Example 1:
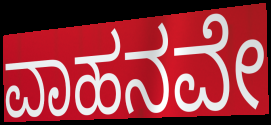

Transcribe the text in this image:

ವಾಹನವೇ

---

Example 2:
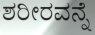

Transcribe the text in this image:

ಶರೀರವನ್ನೆ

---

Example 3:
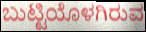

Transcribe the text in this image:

ಬುಟ್ಟಿಯೊಳಗಿರುವ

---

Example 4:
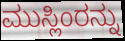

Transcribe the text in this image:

ಮುಸ್ಲಿಂರನ್ನು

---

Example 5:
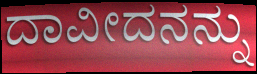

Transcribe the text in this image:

ದಾವೀದನನ್ನು